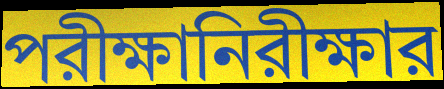
পরীক্ষানিরীক্ষার